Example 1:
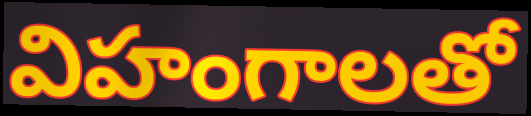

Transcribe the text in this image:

విహంగాలతో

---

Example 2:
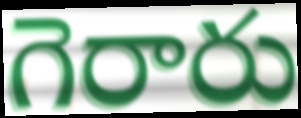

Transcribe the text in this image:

గెరారు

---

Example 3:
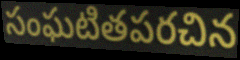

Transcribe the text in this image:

సంఘటితపరచిన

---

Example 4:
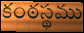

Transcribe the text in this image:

కంఠస్థము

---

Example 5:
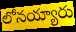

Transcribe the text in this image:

లోనయ్యారు